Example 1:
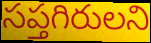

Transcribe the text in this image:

సప్తగిరులని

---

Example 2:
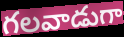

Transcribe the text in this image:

గలవాడుగా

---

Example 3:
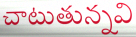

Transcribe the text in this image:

చాటుతున్నవి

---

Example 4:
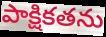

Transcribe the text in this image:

పాక్షికతను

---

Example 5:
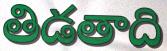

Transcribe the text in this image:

తిడతాది